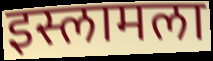
इस्लामला